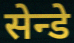
सेन्डे